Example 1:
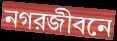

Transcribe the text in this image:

নগরজীবনে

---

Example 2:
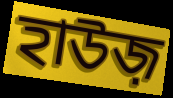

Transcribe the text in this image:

হাউজ়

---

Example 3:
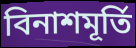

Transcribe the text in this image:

বিনাশমূর্তি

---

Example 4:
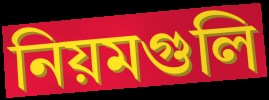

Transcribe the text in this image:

নিয়মগুলি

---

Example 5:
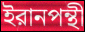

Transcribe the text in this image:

ইরানপন্থী